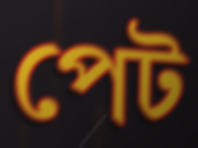
পেট